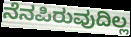
ನೆನಪಿರುವುದಿಲ್ಲ